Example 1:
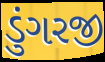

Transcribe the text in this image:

ડુંગરજી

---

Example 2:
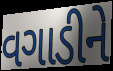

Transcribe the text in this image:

વગાડીને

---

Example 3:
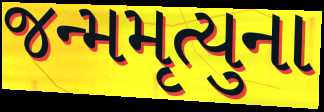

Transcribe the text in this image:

જન્મમૃત્યુના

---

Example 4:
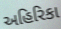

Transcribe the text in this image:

અહિરિકા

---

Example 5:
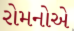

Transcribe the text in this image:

રોમનોએ